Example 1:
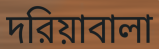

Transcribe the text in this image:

দরিয়াবালা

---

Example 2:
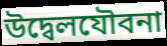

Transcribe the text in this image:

উদ্বেলযৌবনা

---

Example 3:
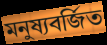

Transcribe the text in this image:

মনুষ্যবর্জিত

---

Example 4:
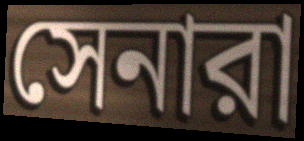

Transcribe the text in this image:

সেনারা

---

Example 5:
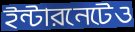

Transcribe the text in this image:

ইন্টারনেটেও